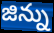
జిన్ను